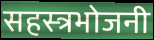
सहस्त्रभोजनी